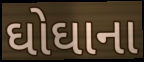
ઘોઘાના